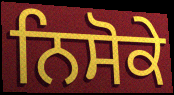
ਨਿਸੋਕੇ